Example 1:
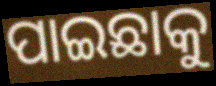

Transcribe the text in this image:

ପାଇଛାକୁ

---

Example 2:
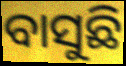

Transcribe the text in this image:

ବାସୁଛି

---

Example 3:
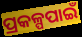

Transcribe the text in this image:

ପ୍ରକଳ୍ପପାଇଁ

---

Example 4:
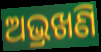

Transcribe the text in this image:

ଅଭ୍ରଖଣି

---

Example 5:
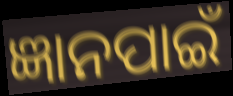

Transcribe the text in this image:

ଜ୍ଞାନପାଇଁ